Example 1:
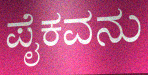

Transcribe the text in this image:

ಪೈಕವನು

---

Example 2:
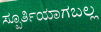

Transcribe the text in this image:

ಸ್ಪೂರ್ತಿಯಾಗಬಲ್ಲ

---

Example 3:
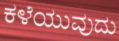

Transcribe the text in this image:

ಕಳೆಯುವುದು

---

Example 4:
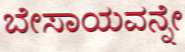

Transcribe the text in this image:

ಬೇಸಾಯವನ್ನೇ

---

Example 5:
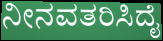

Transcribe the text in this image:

ನೀನವತರಿಸಿದೈ